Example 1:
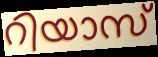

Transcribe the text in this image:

റിയാസ്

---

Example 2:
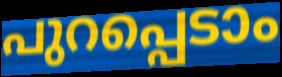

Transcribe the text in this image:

പുറപ്പെടാം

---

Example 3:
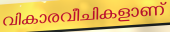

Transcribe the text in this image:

വികാരവീചികളാണ്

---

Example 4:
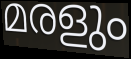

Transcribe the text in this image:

മരളും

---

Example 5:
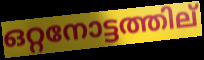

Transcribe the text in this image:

ഒറ്റനോട്ടത്തില്